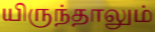
யிருந்தாலும்